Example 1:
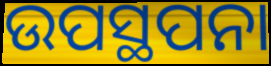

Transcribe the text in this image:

ଉପସ୍ଥପନା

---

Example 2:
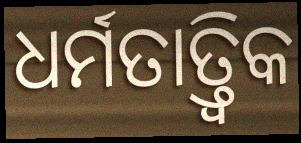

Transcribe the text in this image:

ଧର୍ମତାତ୍ତ୍ଵିକ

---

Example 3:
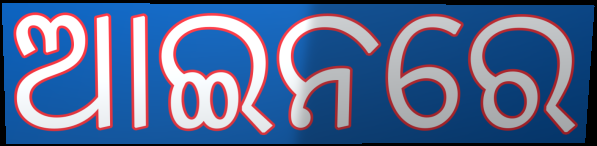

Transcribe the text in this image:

ଆଇନରେ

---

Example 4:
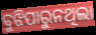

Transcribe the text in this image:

ବୁଝିପାରୁନଥିଲା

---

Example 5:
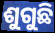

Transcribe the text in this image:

ଶୁଗୁଛି